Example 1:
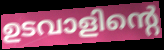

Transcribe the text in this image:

ഉടവാളിന്റെ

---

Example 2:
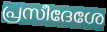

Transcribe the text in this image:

പ്രസീദേശേ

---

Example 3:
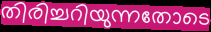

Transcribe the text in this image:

തിരിച്ചറിയുന്നതോടെ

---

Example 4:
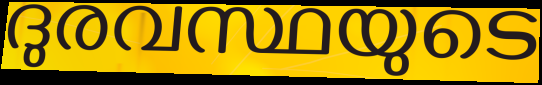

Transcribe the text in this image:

ദുരവസ്ഥയുടെ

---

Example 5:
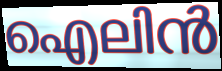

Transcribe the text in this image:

ഐലിൻ